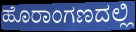
ಹೊರಾಂಗಣದಲ್ಲಿ